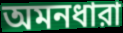
অমনধারা